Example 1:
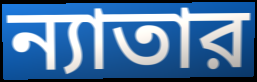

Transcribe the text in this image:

ন্যাতার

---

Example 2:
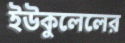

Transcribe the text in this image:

ইউকুলেলের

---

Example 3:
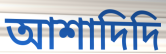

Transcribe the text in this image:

আশাদিদি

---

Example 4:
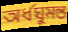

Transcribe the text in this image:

অর্ধঘুমন্ত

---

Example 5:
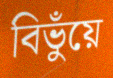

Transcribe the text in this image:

বিভুঁয়ে